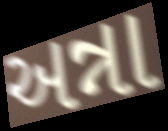
અન્ના